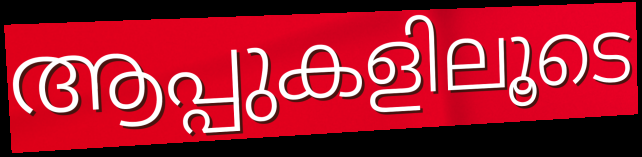
ആപ്പുകളിലൂടെ